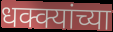
धक्क्यांच्या